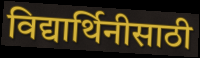
विद्यार्थिनीसाठी